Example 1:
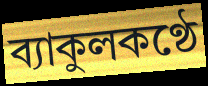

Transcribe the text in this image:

ব্যাকুলকণ্ঠে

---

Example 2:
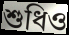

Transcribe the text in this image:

শুধিও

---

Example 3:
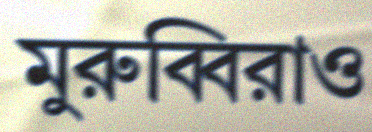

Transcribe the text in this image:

মুরুব্বিরাও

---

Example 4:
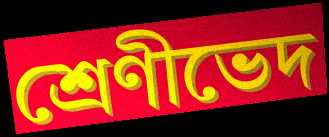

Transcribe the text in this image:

শ্রেণীভেদ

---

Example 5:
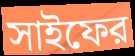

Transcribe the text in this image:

সাইফের